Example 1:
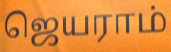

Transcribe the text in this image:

ஜெயராம்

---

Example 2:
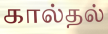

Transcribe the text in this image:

கால்தல்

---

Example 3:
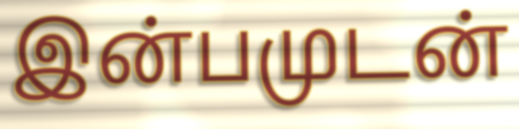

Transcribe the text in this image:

இன்பமுடன்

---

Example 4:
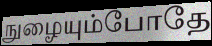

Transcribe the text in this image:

நுழையும்போதே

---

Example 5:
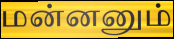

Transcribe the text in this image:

மன்னனும்